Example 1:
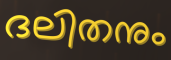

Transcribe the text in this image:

ദലിതനും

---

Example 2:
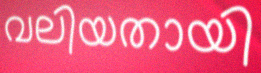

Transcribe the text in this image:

വലിയതായി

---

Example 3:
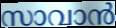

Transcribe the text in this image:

സാവാൻ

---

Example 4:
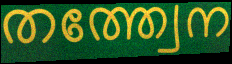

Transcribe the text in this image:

തത്ത്വേന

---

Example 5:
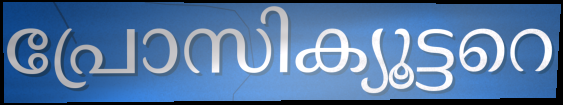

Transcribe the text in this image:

പ്രോസിക്യൂട്ടറെ